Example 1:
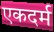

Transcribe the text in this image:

एकदर्म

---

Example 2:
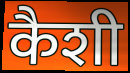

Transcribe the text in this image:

कैशी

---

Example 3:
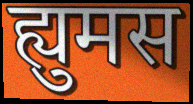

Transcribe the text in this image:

ह्युमस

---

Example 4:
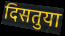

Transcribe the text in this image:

दिसतुया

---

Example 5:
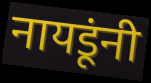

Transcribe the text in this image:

नायडूंनी